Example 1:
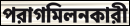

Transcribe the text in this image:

পরাগমিলনকারী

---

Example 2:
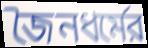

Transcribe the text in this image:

জৈনধর্মের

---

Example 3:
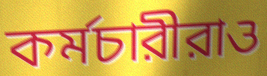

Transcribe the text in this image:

কর্মচারীরাও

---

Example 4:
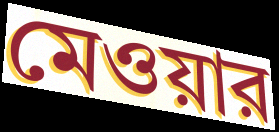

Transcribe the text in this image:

মেওয়ার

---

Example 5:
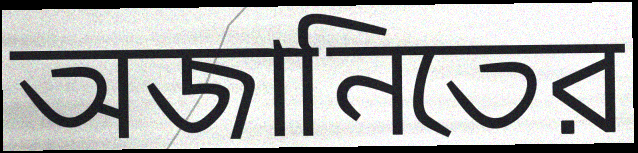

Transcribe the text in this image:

অজানিতের